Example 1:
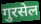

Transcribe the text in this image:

गुरसेल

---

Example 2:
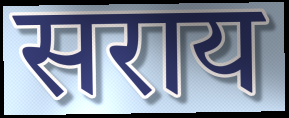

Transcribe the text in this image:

सराय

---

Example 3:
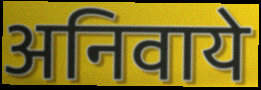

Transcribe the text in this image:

अनिवाये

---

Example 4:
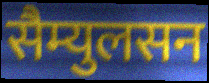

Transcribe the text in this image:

सैम्युलसन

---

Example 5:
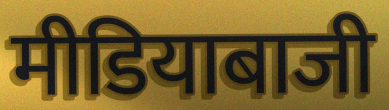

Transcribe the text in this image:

मीडियाबाजी